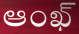
ఆంఖ్